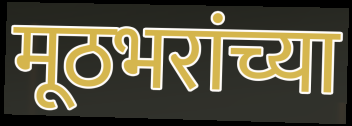
मूठभरांच्या